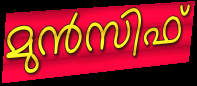
മുൻസിഫ്